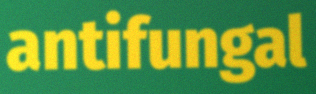
antifungal